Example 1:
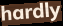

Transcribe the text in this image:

hardly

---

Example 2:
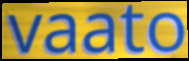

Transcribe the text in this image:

vaato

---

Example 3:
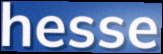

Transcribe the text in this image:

hesse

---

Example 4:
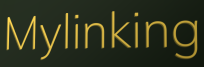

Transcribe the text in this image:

Mylinking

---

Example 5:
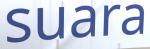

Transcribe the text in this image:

suara